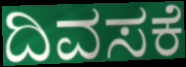
ದಿವಸಕೆ